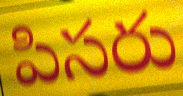
పిసరు